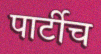
पार्टीच